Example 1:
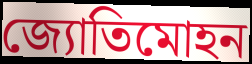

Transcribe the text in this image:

জ্যোতিমোহন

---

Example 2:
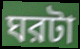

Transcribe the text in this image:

ঘরটা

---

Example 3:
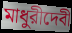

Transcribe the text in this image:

মাধুরীদেবী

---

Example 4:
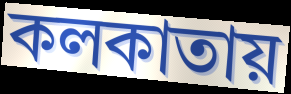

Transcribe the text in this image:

কলকাতায়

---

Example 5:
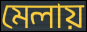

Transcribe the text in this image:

মেলায়